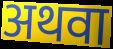
अथवा